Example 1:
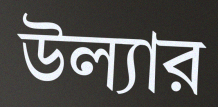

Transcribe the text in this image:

উল্যার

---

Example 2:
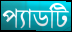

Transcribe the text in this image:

প্যাডটি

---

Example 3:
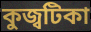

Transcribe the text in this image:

কুজ্বটিকা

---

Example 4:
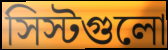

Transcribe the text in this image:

সিস্টগুলো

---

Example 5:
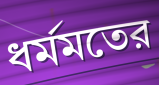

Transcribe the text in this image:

ধর্মমতের